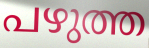
പഴുത്ത